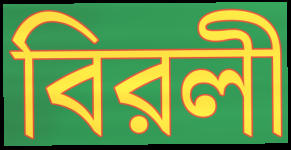
বিরলী